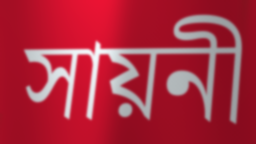
সায়নী